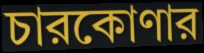
চারকোণার